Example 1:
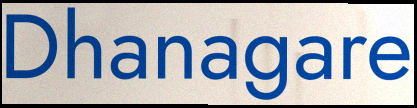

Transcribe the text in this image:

Dhanagare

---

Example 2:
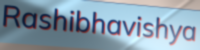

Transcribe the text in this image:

Rashibhavishya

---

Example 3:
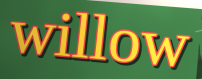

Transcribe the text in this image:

willow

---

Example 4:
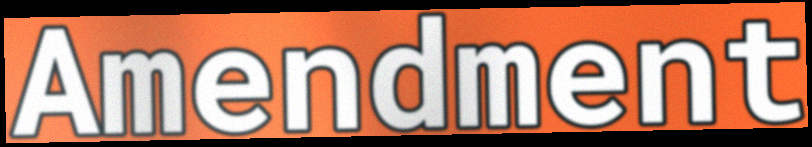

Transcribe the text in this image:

Amendment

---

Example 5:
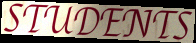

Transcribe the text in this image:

STUDENTS